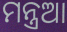
ମନ୍ତ୍ରଆ